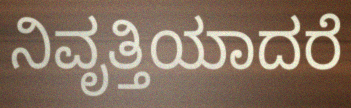
ನಿವೃತ್ತಿಯಾದರೆ